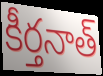
కీర్తనాత్